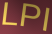
LPI